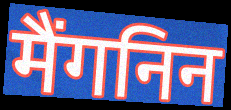
मैंगनिन